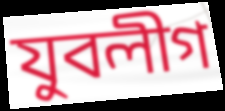
যুবলীগ